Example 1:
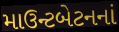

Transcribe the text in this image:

માઉન્ટબેટનનાં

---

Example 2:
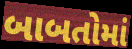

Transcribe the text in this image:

બાબતોમાં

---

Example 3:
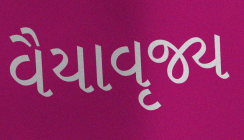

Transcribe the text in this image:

વૈયાવૃજ્ય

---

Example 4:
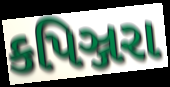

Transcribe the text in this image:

કપિઞ્જરા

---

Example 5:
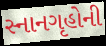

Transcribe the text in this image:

સ્નાનગૃહોની